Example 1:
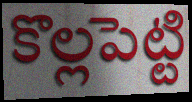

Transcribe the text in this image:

కొల్లపెట్టి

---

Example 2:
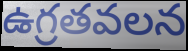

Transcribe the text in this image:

ఉగ్రతవలన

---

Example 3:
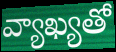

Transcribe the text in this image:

వ్యాఖ్యతో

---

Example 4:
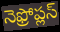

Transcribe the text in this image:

నెఫ్రోప్లస్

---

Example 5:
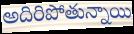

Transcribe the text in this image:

అదిరిపోతున్నాయి